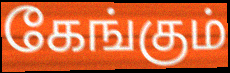
கேங்கும்